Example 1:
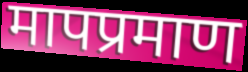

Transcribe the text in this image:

मापप्रमाण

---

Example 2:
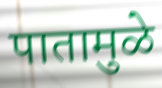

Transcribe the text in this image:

पातामुळे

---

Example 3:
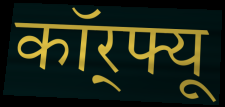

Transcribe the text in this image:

कॉर्फ्यू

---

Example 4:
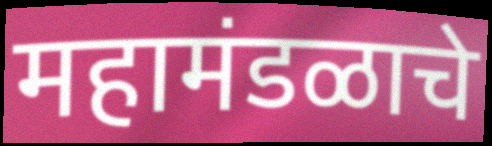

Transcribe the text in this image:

महामंडळाचे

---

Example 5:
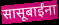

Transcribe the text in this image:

सासूबाईंना